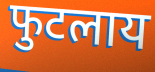
फुटलाय